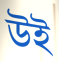
উই